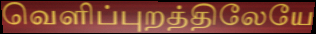
வெளிப்புறத்திலேயே